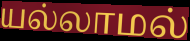
யல்லாமல்